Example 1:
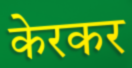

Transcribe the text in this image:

केरकर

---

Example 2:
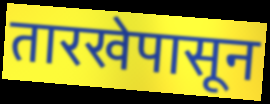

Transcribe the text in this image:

तारखेपासून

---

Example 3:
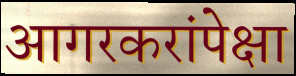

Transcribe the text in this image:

आगरकरांपेक्षा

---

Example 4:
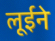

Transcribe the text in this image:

लूईने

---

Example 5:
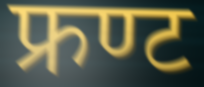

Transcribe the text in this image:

फ्रण्ट